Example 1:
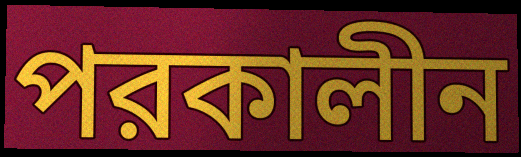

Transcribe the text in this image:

পরকালীন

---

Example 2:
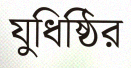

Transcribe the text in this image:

যুধিষ্ঠির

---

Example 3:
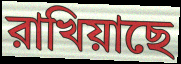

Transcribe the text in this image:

রাখিয়াছে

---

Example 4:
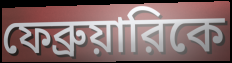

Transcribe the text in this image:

ফেব্রুয়ারিকে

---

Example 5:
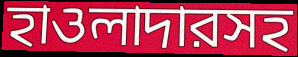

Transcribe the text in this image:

হাওলাদারসহ